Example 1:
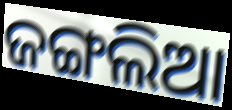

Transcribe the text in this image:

ଜଙ୍ଗଲିଆ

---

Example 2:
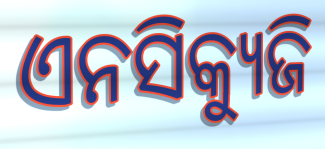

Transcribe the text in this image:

ଏନସିକ୍ୟୁଜି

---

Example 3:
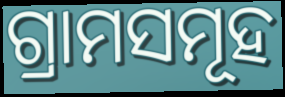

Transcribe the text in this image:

ଗ୍ରାମସମୂହ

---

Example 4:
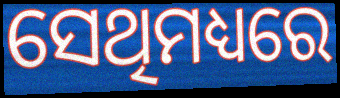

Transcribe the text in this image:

ସେଥିମଧ୍ୟରେ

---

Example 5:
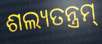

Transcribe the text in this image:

ଶଲ୍ୟତନ୍ତ୍ରମ୍